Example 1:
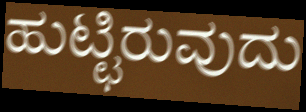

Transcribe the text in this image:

ಹುಟ್ಟಿರುವುದು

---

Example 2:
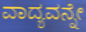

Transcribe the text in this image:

ವಾದ್ಯವನ್ನೇ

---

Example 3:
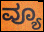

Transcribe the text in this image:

ವ್ಯೂ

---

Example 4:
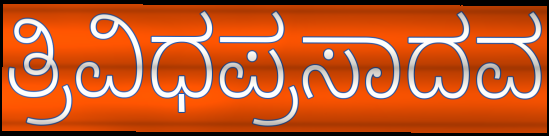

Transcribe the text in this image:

ತ್ರಿವಿಧಪ್ರಸಾದವ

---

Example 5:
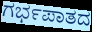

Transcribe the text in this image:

ಗರ್ಭಪಾತದ